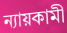
ন্যায়কামী